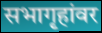
सभागृहांवर